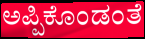
ಅಪ್ಪಿಕೊಂಡಂತೆ